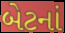
બેટનાં